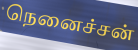
நெனைச்சன்